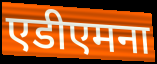
एडीएमना